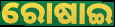
ରୋଷାଇ